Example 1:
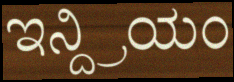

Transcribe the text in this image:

ಇನ್ದ್ರಿಯಂ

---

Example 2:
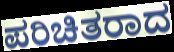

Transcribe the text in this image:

ಪರಿಚಿತರಾದ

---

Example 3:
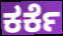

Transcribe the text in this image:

ಕರ್ಕೆ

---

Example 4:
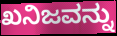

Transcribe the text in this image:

ಖನಿಜವನ್ನು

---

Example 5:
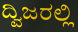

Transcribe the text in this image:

ದ್ವಿಜರಲ್ಲಿ